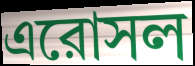
এরোসল